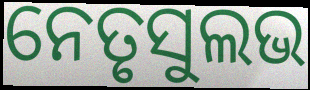
ନେତୃସୁଲଭ